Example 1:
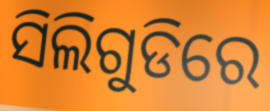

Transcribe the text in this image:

ସିଲିଗୁଡିରେ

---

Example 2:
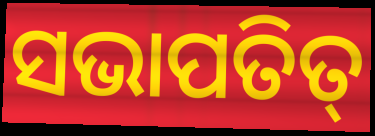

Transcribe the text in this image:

ସଭାପତିତ୍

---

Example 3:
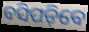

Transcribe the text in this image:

ବସିପଡ଼ିବେ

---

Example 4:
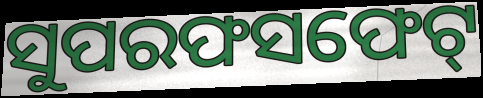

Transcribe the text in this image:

ସୁପରଫସଫେଟ୍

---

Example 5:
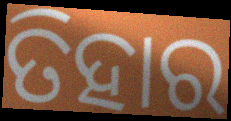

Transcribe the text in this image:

ତିହାର